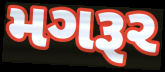
મગરૂર